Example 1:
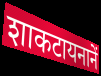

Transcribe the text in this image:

शाकटायनानें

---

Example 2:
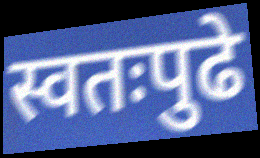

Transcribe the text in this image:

स्वतःपुढे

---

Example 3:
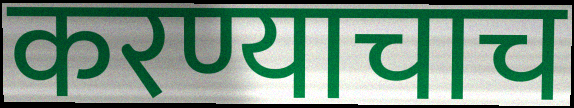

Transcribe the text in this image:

करण्याचाच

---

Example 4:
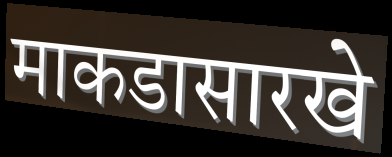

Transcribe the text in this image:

माकडासारखे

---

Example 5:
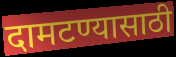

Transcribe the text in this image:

दामटण्यासाठी